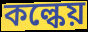
কল্কেয়